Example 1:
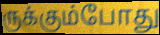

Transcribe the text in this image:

ருக்கும்போது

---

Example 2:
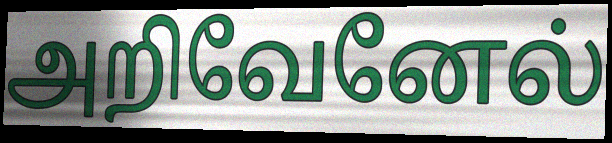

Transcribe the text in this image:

அறிவேனேல்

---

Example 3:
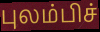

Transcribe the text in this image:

புலம்பிச்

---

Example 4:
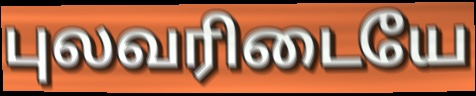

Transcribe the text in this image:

புலவரிடையே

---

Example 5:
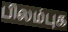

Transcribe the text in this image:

பிலம்புக